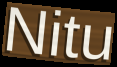
Nitu